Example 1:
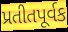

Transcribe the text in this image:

પ્રતીતપૂર્વક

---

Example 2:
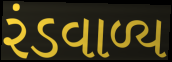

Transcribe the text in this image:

રંડવાળ્ય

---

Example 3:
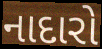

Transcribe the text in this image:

નાદારો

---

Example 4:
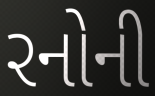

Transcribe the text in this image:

રનોની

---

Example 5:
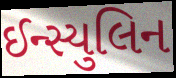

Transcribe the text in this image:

ઈન્સ્યુલિન